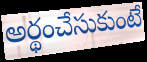
అర్థంచేసుకుంటే